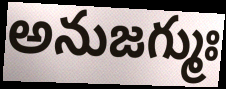
అనుజగ్ముః